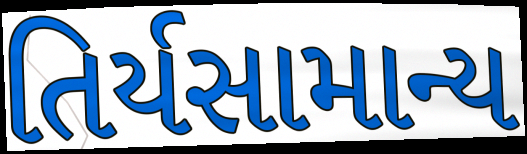
તિર્યસામાન્ય